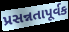
પ્રસન્નતાપૂર્વક